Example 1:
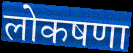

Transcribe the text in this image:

लोकषणा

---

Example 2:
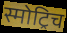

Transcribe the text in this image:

स्मोट्रिच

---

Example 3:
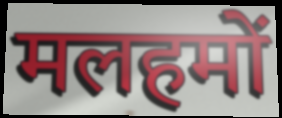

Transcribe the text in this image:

मलहमों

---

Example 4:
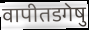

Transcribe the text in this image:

वापीतडगेषु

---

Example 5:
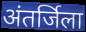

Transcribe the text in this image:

अंतर्जिला